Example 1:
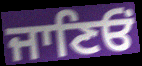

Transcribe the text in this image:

ਜਾਣਿਓਂ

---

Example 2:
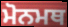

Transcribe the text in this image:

ਮੋਨਮਥ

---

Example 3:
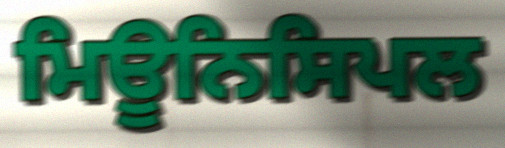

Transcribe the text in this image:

ਮਿਊਨਿਸਿਪਲ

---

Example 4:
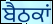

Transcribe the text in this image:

ਬੈਠਕਾਂ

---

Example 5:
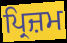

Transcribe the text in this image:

ਪ੍ਰਿਜ਼ਮ